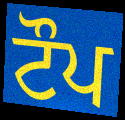
ਟੌਪ